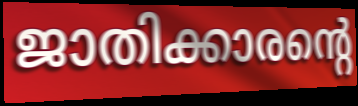
ജാതിക്കാരന്റെ